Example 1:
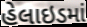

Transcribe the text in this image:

હેલાઇડમાં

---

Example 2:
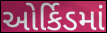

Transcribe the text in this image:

ઓર્કિડમાં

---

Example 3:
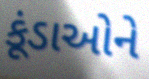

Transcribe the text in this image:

કૂંડાઓને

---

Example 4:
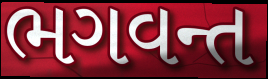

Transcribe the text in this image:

ભગવન્ત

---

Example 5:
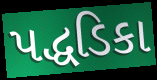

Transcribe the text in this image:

પદ્ધડિકા